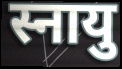
स्नायु